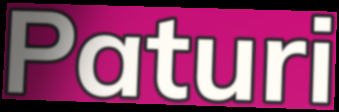
Paturi